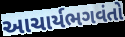
આચાર્યભગવંતો